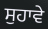
ਸੁਹਾਵੇ